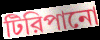
টিরিপানো